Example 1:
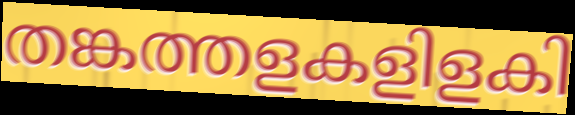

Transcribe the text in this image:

തങ്കത്തളകളിളകി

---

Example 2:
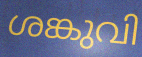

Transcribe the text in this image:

ശങ്കുവി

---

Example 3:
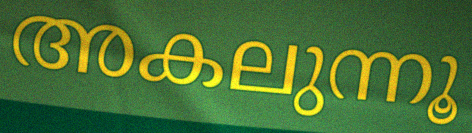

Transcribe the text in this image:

അകലുന്നൂ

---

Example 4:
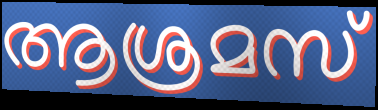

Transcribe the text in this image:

ആശ്രമസ്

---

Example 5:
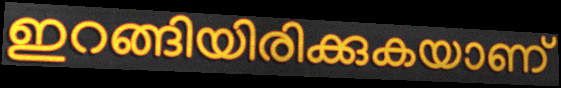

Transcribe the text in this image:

ഇറങ്ങിയിരിക്കുകയാണ്